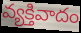
వ్యక్తివాదం